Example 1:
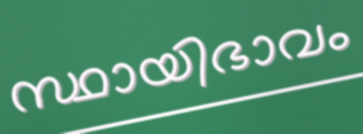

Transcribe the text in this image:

സ്ഥായിഭാവം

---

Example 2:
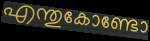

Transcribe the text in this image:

എന്തുകോണ്ടോ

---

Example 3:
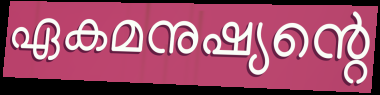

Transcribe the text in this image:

ഏകമനുഷ്യന്റെ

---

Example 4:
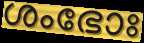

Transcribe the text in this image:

ശംഭോഃ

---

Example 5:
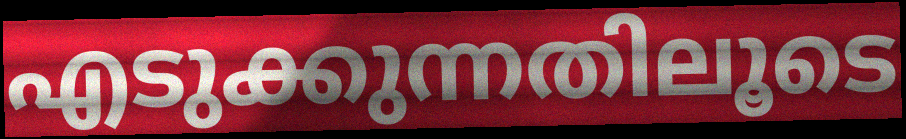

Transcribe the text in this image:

എടുക്കുന്നതിലൂടെ